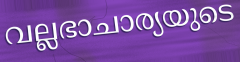
വല്ലഭാചാര്യയുടെ